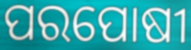
ପରପୋଷୀ